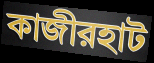
কাজীরহাট